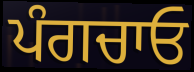
ਪੰਗਚਾਓ